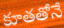
కూతతోనే